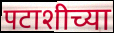
पटाशीच्या